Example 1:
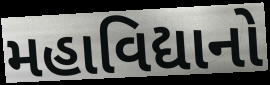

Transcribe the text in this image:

મહાવિદ્યાનો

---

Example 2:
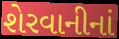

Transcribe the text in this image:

શેરવાનીનાં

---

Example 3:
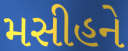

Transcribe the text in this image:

મસીહને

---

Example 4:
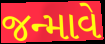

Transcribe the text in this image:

જન્માવે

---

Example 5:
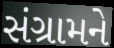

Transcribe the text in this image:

સંગ્રામને